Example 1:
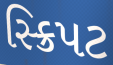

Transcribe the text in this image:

સ્ક્રિપટ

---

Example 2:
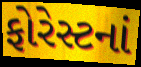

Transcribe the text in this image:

ફોરેસ્ટનાં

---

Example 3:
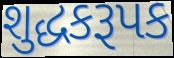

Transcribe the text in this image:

શુદ્ધકરૂપક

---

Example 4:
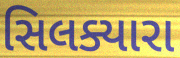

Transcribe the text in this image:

સિલક્યારા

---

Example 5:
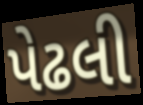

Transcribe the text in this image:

પેઢલી